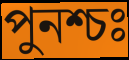
পুনশ্চঃ